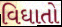
વિઘાતો